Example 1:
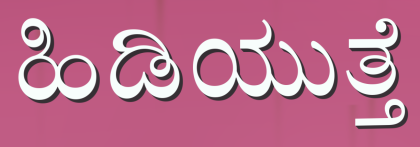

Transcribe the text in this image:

ಹಿಡಿಯುತ್ತೆ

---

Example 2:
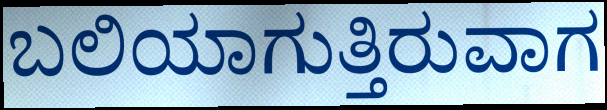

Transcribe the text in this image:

ಬಲಿಯಾಗುತ್ತಿರುವಾಗ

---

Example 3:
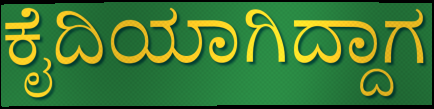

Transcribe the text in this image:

ಕೈದಿಯಾಗಿದ್ದಾಗ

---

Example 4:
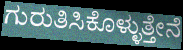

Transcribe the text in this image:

ಗುರುತಿಸಿಕೊಳ್ಳುತ್ತೇನೆ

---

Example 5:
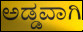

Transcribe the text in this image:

ಅಡ್ಡವಾಗಿ